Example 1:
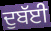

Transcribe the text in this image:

ਦੁਬੱਈ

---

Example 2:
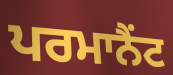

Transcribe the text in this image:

ਪਰਮਾਨੈਂਟ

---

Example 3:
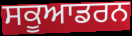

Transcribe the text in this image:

ਸਕੂਆਡਰਨ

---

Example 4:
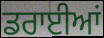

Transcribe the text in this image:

ਡਰਾਈਆਂ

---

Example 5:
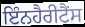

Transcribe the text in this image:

ਇੰਨਹੈਰੀਟੈੰਸ